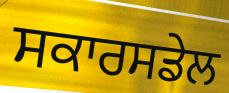
ਸਕਾਰਸਡੇਲ